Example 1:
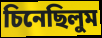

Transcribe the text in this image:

চিনেছিলুম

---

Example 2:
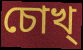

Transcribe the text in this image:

চোখ্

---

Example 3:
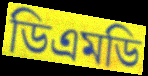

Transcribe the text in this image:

ডিএমডি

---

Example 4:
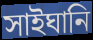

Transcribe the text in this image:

সাইঘানি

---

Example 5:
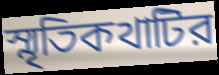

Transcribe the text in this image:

স্মৃতিকথাটির